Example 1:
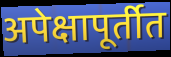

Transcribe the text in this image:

अपेक्षापूर्तीत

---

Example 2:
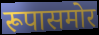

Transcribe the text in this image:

रूपासमोर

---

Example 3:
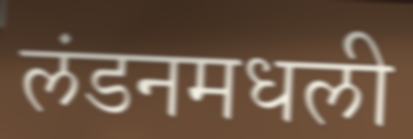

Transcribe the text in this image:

लंडनमधली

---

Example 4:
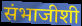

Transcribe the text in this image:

संभाजीशी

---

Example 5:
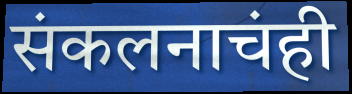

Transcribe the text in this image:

संकलनाचंही